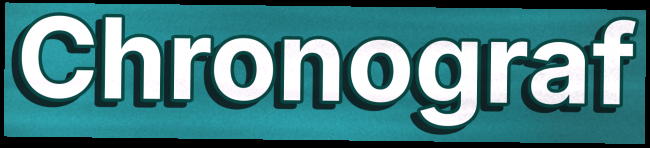
Chronograf